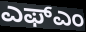
ಎಫ್ಎಂ